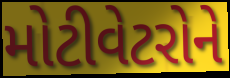
મોટીવેટરોને